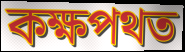
কক্ষপথত